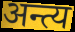
अन्त्य